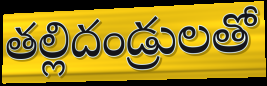
తల్లిదండ్రులతో